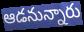
ఆడనున్నారు